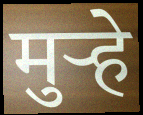
मुऱ्हे